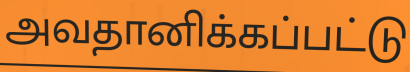
அவதானிக்கப்பட்டு